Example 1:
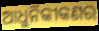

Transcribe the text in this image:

ଆଧୁନିକୀକଣର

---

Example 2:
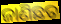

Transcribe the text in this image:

ଜାଣିଛତ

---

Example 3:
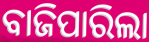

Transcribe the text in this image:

ବାଜିପାରିଲା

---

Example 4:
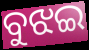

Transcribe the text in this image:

ବୁଝଇ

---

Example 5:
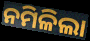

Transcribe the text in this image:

ନମିଳିଲା